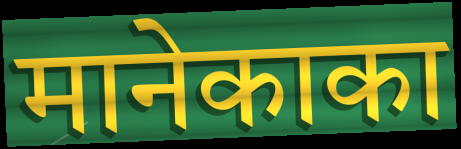
मानेकाका